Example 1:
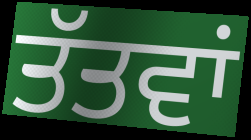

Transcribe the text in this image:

ਤੱਤਵਾਂ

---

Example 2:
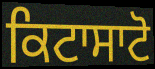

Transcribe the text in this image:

ਕਿਟਾਸਾਟੋ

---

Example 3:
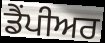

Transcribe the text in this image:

ਡੈਂਪੀਅਰ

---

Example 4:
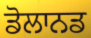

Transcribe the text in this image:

ਡੋਲਾਨਡ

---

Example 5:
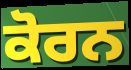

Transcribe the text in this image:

ਕੋਰਨ